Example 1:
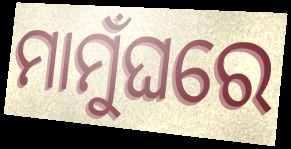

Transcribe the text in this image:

ମାମୁଁଘରେ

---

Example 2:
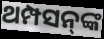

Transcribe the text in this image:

ଥମ୍ପସନ୍‌ଙ୍କ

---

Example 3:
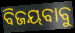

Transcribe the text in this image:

ବିଜୟବାବୁ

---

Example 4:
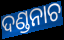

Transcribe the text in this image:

ଦଣ୍ଡନାଚ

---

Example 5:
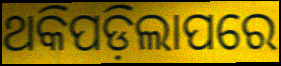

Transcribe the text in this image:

ଥକିପଡ଼ିଲାପରେ